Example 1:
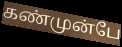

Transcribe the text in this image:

கண்முன்பே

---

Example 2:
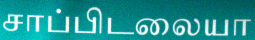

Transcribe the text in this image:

சாப்பிடலையா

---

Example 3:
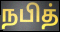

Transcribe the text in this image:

நபித்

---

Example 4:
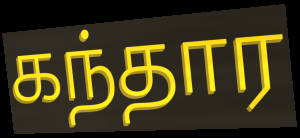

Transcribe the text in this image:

கந்தார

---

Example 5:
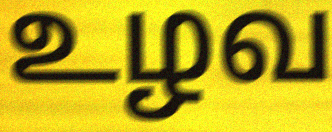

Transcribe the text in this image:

உழவ